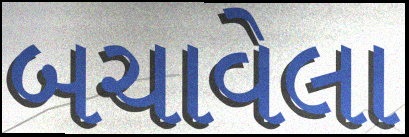
બચાવેલા